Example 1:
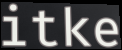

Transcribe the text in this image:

itke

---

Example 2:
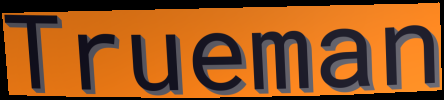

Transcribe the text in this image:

Trueman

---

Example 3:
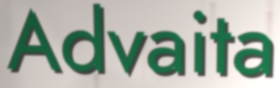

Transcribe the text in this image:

Advaita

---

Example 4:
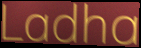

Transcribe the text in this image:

Ladha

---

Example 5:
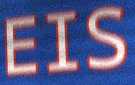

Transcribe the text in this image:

EIS